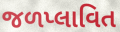
જળપ્લાવિત